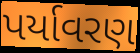
પર્યાવરણ